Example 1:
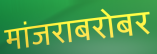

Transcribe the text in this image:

मांजराबरोबर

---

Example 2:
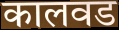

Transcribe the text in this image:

कालवड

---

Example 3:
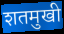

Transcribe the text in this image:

शतमुखी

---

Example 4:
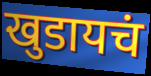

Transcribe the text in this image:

खुडायचं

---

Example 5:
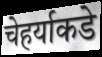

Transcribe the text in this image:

चेहर्याकडे